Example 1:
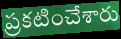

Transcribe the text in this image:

ప్రకటించేశారు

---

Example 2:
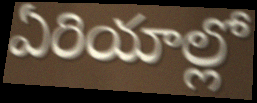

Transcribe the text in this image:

ఏరియాల్లో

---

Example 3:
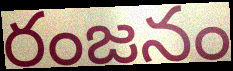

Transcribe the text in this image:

రంజనం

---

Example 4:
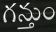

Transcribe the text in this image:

గన్తుం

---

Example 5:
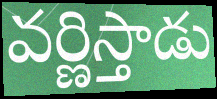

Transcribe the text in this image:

వర్ణిస్తాడు